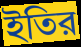
ইতির